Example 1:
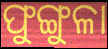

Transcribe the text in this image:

ଫୁଙ୍ଗୁଳା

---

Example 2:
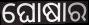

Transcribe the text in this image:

ଘୋଷାର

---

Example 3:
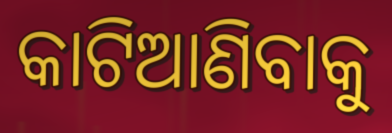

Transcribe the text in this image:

କାଟିଆଣିବାକୁ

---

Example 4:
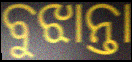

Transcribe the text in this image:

ବୁଝାନ୍ତା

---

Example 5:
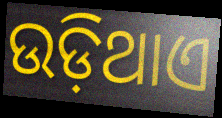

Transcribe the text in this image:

ଉଡ଼ିଥାଏ